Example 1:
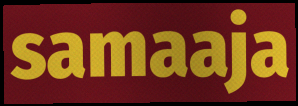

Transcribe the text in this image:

samaaja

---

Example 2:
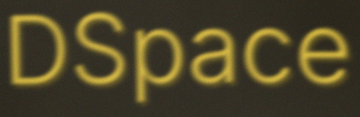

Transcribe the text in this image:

DSpace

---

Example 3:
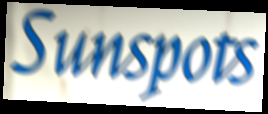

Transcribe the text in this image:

Sunspots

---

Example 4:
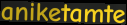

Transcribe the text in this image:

aniketamte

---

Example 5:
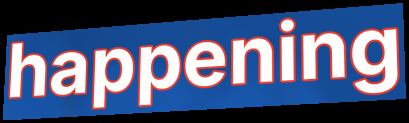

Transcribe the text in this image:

happening